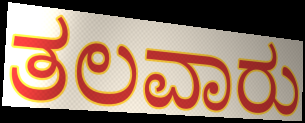
ತಲವಾರು